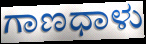
ಗಾಣಧಾಳು